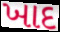
ખાદ